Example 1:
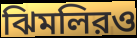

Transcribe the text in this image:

ঝিমলিরও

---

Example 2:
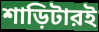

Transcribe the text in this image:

শাড়িটারই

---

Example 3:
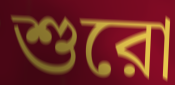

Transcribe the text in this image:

শুরো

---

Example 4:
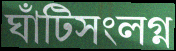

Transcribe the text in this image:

ঘাঁটিসংলগ্ন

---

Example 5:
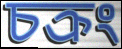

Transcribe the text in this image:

চক্রং